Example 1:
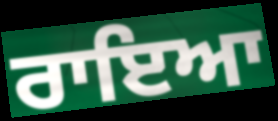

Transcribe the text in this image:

ਰਾਇਆ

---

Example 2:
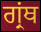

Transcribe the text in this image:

ਗ੍ਰਂਥ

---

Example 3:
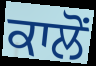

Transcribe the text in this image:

ਕਾਲੋਂ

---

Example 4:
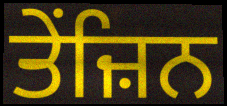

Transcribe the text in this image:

ਤੇਂਜ਼ਿਨ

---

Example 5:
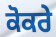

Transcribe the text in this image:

ਕੋਕਰੇ